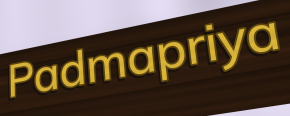
Padmapriya